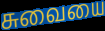
சுவையை